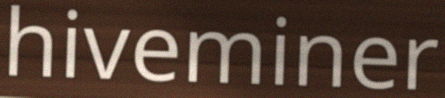
hiveminer